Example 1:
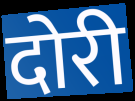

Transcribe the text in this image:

दोरी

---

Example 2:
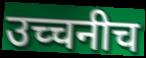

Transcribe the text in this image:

उच्चनीच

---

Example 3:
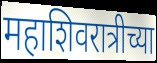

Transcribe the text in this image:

महाशिवरात्रीच्या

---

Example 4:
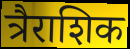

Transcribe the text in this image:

त्रैराशिक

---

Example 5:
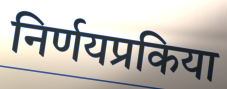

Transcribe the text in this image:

निर्णयप्रकिया